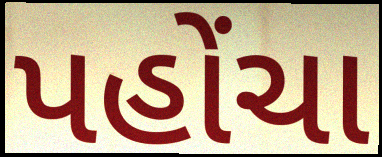
પહોંચા